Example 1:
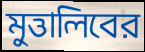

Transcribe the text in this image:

মুত্তালিবের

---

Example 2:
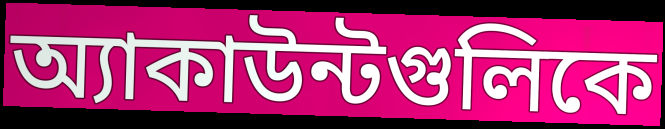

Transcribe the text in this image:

অ্যাকাউন্টগুলিকে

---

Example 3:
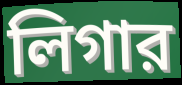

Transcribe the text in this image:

লিগার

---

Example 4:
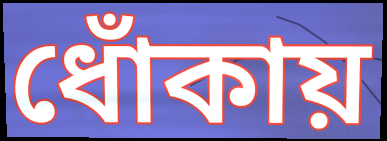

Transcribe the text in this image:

ধোঁকায়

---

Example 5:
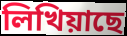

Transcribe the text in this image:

লিখিয়াছে